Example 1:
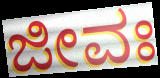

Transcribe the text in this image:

ಜೀವಃ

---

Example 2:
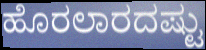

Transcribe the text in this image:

ಹೊರಲಾರದಷ್ಟು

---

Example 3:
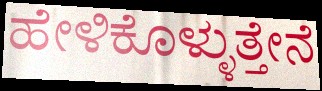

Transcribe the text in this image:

ಹೇಳಿಕೊಳ್ಳುತ್ತೇನೆ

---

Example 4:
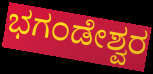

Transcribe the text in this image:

ಭಗಂಡೇಶ್ವರ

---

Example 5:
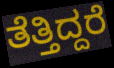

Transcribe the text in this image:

ತೆತ್ತಿದ್ದರೆ